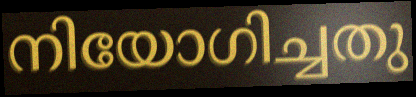
നിയോഗിച്ചതു